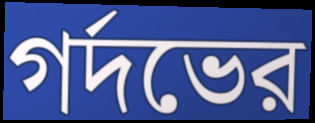
গর্দভের